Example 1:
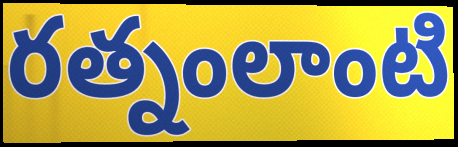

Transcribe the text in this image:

రత్నంలాంటి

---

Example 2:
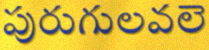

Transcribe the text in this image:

పురుగులవలె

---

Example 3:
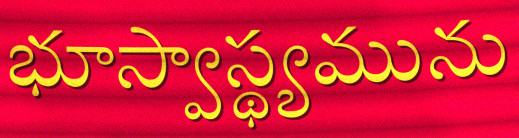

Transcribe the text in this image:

భూస్వాస్థ్యమును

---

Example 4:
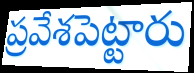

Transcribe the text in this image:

ప్రవేశపెట్టారు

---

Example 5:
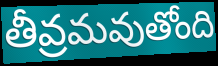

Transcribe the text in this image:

తీవ్రమవుతోంది